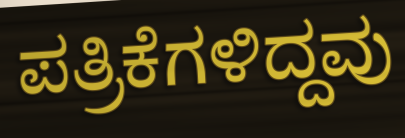
ಪತ್ರಿಕೆಗಳಿದ್ದವು